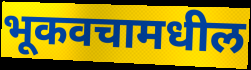
भूकवचामधील